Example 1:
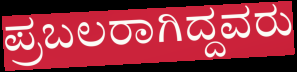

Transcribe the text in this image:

ಪ್ರಬಲರಾಗಿದ್ದವರು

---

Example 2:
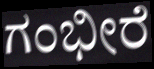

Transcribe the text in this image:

ಗಂಭೀರೆ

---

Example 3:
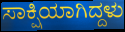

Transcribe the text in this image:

ಸಾಕ್ಷಿಯಾಗಿದ್ದಳು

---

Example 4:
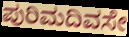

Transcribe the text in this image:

ಪುರಿಮದಿವಸೇ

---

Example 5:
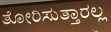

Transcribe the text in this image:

ತೋರಿಸುತ್ತಾರಲ್ಲ